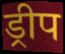
ड्रीप